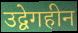
उद्वेगहीन